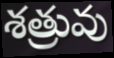
శత్రువు